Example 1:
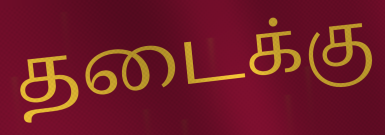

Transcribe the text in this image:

தடைக்கு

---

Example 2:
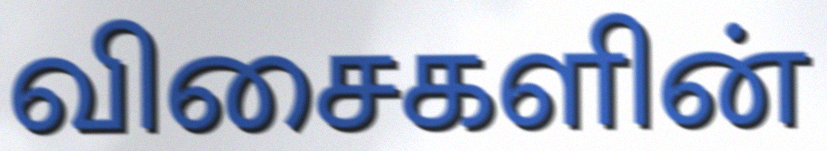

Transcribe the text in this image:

விசைகளின்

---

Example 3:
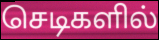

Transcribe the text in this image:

செடிகளில்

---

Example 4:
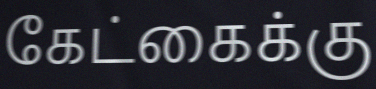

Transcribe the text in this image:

கேட்கைக்கு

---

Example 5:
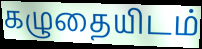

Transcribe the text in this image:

கழுதையிடம்